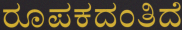
ರೂಪಕದಂತಿದೆ